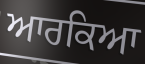
ਆਰਕਿਆ